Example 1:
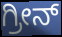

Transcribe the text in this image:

ಗ್ರೀನ್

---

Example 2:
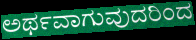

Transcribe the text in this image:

ಅರ್ಥವಾಗುವುದರಿಂದ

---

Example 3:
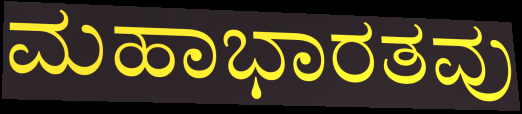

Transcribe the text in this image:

ಮಹಾಭಾರತವು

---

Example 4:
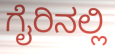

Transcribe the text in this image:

ಗೈರಿನಲ್ಲಿ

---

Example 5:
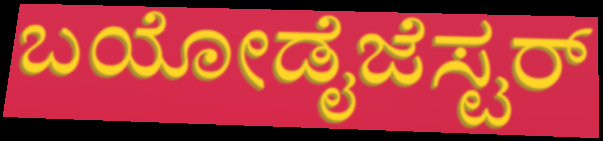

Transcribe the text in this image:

ಬಯೋಡೈಜೆಸ್ಟರ್